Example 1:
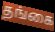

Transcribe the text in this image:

தங்கை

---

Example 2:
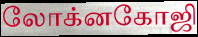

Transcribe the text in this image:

லோக்னகோஜி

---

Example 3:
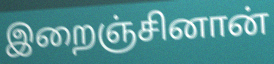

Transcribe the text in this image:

இறைஞ்சினான்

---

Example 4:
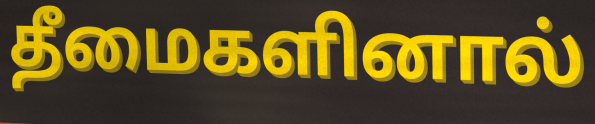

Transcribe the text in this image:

தீமைகளினால்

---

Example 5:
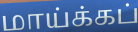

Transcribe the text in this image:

மாய்க்கப்